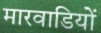
मारवाडियों